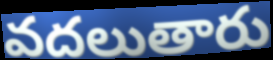
వదలుతారు